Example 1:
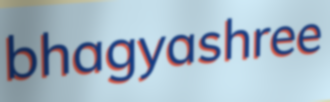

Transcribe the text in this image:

bhagyashree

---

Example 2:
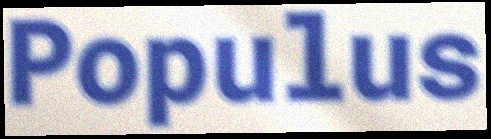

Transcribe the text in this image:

Populus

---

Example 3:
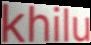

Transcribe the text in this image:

khilu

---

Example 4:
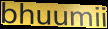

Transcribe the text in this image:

bhuumii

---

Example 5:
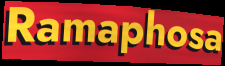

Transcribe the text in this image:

Ramaphosa